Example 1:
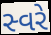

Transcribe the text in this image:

સ્વરે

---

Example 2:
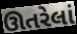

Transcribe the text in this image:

ઊતરેલાં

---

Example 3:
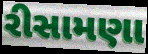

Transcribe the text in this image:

રીસામણા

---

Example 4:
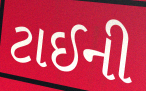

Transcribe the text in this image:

ટાઈની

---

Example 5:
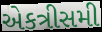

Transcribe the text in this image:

એકત્રીસમી